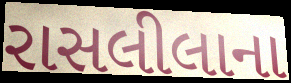
રાસલીલાના